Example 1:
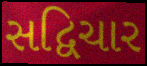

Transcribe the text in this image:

સદ્વિચાર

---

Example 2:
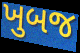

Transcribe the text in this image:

ખુબજ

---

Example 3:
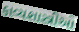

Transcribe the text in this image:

કાવ્યશાસ્ત્રીઓ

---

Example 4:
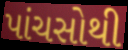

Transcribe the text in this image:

પાંચસોથી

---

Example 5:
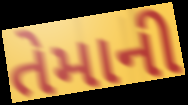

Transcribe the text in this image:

તેમાની